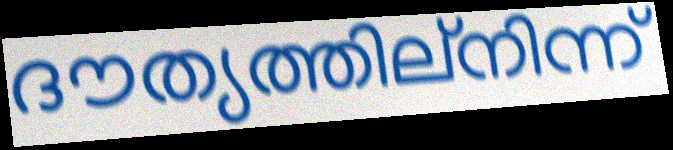
ദൗത്യത്തില്നിന്ന്